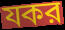
যকর